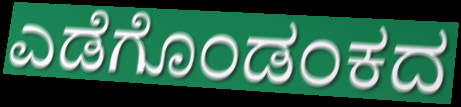
ಎಡೆಗೊಂಡಂಕದ